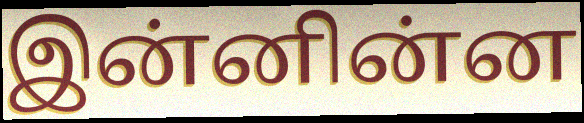
இன்னின்ன